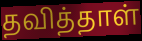
தவித்தாள்